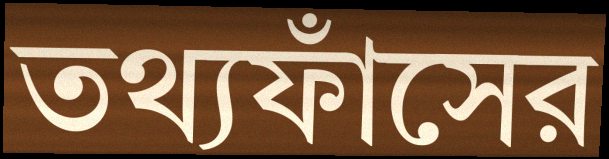
তথ্যফাঁসের